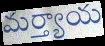
మర్త్యాయ